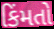
કિંમતો